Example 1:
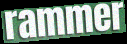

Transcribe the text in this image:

rammer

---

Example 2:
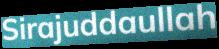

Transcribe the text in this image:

Sirajuddaullah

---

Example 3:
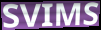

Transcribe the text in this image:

SVIMS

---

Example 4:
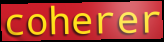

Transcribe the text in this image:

coherer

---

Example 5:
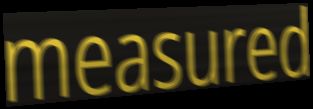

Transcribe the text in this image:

measured